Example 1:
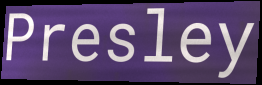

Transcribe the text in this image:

Presley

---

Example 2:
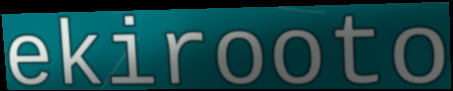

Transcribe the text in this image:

ekirooto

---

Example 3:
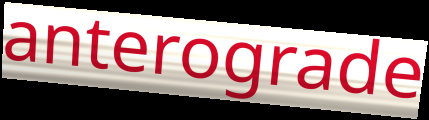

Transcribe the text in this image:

anterograde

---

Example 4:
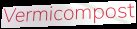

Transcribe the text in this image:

Vermicompost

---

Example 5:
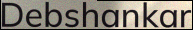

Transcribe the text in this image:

Debshankar